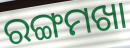
ରଙ୍ଗମଖା